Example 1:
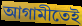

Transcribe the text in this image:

আগামীতেই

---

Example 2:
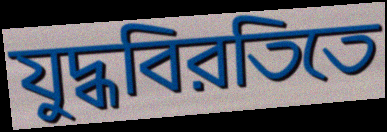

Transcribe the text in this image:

যুদ্ধবিরতিতে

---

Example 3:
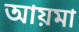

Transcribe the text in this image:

আয়মা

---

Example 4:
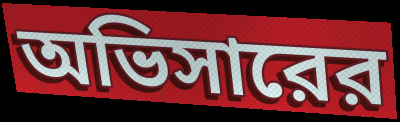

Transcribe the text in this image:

অভিসারের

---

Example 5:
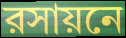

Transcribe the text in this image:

রসায়নে